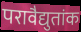
परावैद्युतांक